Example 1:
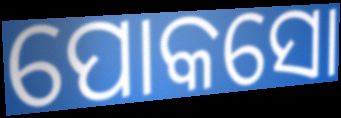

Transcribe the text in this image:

ପୋକସୋ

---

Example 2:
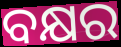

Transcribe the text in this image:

ବକ୍ଷର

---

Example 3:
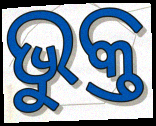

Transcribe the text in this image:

ଭୁକ୍ତ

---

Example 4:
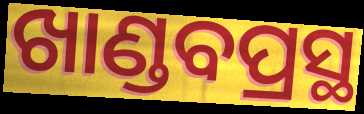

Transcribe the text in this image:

ଖାଣ୍ଡବପ୍ରସ୍ଥ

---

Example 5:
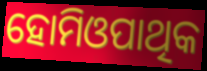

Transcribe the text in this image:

ହୋମିଓପାଥିକ